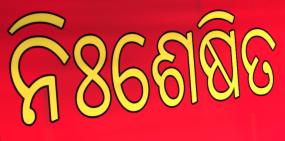
ନିଃଶେଷିତ